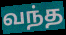
வந்த